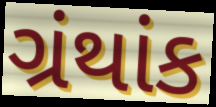
ગ્રંથાંક